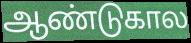
ஆண்டுகால